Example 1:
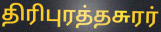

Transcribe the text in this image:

திரிபுரத்தசுரர்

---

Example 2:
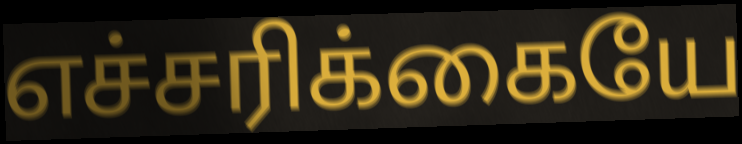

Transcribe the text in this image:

எச்சரிக்கையே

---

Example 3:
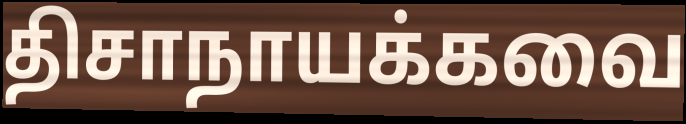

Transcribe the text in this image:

திசாநாயக்கவை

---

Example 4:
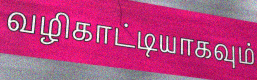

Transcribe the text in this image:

வழிகாட்டியாகவும்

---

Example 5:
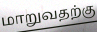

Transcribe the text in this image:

மாறுவதற்கு